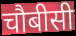
चौबीसी